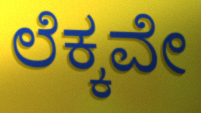
ಲೆಕ್ಕವೇ